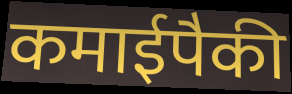
कमाईपैकी